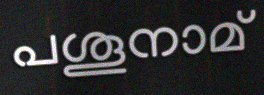
പശൂനാമ്